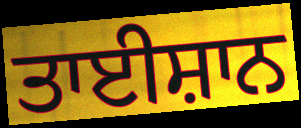
ਤਾਈਸ਼ਾਨ